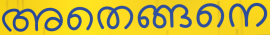
അതെങ്ങനെ